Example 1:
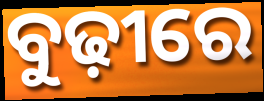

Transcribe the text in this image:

ବୁଢ଼ୀରେ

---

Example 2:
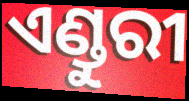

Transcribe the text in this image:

ଏଣ୍ଡୁରୀ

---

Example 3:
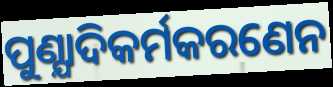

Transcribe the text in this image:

ପୁଣ୍ଯାଦିକର୍ମକରଣେନ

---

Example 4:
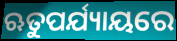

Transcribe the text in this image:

ଋତୁପର୍ଯ୍ୟାୟରେ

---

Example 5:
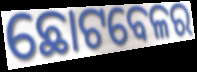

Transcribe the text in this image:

ଛୋଟବେଳର